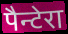
पैन्टेरा